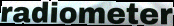
radiometer